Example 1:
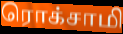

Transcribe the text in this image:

ரொக்சாமி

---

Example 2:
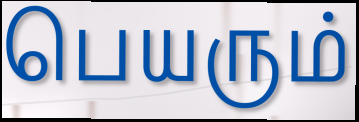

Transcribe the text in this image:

பெயரும்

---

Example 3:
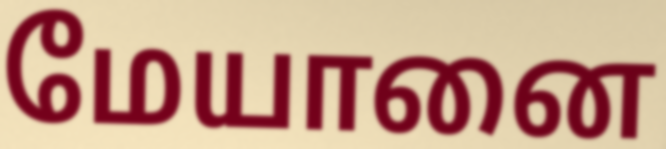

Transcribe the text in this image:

மேயானை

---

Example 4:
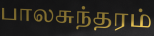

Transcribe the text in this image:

பாலசுந்தரம்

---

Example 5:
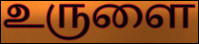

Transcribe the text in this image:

உருளை